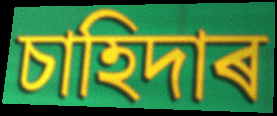
চাহিদাৰ